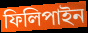
ফিলিপাইন